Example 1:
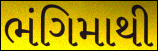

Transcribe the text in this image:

ભંગિમાથી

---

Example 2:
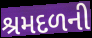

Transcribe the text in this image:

શ્રમદળની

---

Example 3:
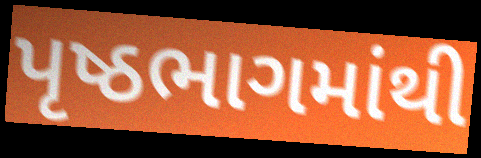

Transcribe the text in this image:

પૃષ્ઠભાગમાંથી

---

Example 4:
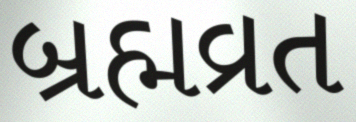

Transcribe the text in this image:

બ્રહ્મવ્રત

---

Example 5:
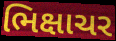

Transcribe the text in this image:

ભિક્ષાચર